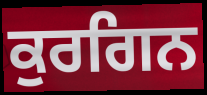
ਕੁਰਗਿਨ